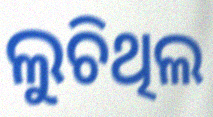
ଲୁଚିଥିଲ